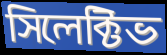
সিলেক্টিভ